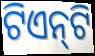
ଟିଏନ୍‌ଟି